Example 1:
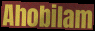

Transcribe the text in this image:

Ahobilam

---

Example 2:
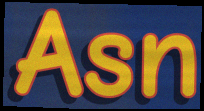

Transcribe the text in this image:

Asn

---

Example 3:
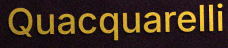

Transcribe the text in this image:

Quacquarelli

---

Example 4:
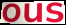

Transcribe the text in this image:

ous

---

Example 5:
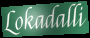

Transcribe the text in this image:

Lokadalli